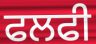
ਫਲਫੀ